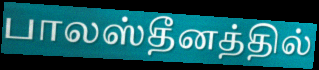
பாலஸ்தீனத்தில்